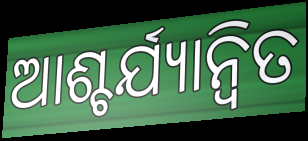
ଆଶ୍ଚର୍ଯ୍ୟାନ୍ୱିତ